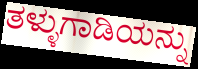
ತಳ್ಳುಗಾಡಿಯನ್ನು